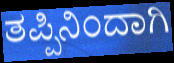
ತಪ್ಪಿನಿಂದಾಗಿ